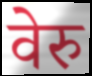
वेरु